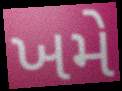
ખમે